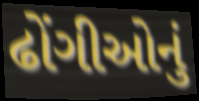
ઢોંગીઓનું